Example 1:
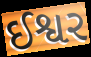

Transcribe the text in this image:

ઈશ્વર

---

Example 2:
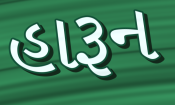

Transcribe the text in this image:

હારૂન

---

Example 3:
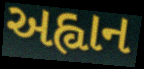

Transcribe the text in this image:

અહ્વાન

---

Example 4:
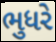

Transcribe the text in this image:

ભુધરે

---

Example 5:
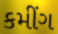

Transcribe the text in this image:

કમીંગ